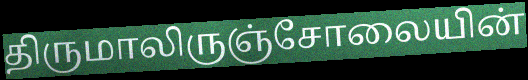
திருமாலிருஞ்சோலையின்